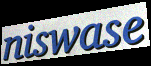
niswase